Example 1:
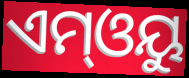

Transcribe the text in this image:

ଏମ୍ଓୟୁ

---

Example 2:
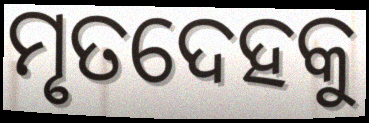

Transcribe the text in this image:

ମୃତଦେହକୁ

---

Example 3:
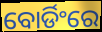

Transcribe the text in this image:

ବୋର୍ଡିଂରେ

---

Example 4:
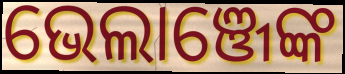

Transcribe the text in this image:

ଭେଲାଞ୍ଜେଙ୍କ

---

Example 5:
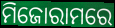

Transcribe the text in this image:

ମିଜୋରାମରେ